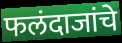
फलंदाजांचे